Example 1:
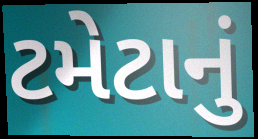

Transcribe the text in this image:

ટમેટાનું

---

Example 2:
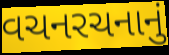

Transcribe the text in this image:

વચનરચનાનું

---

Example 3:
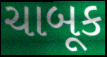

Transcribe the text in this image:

ચાબૂક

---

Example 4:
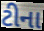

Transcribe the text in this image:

ટીના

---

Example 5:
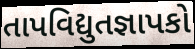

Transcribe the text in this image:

તાપવિદ્યુતજ્ઞાપકો